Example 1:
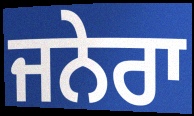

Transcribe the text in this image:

ਜਨੇਰਾ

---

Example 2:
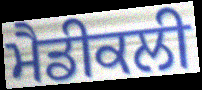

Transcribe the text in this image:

ਮੈਡੀਕਲੀ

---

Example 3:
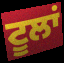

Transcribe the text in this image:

ਟੂਲਾਂ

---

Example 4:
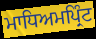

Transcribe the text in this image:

ਮਾਧਿਅਮਪ੍ਰਿੰਟ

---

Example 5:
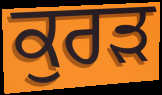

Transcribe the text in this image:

ਕੁਰੜ